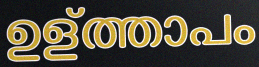
ഉള്ത്താപം